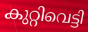
കുറ്റിവെട്ടി